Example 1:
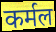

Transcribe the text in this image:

कर्मल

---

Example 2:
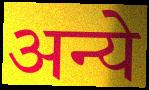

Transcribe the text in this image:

अन्ये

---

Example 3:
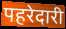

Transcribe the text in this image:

पहरेदारी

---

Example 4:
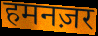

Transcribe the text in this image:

हमनज़र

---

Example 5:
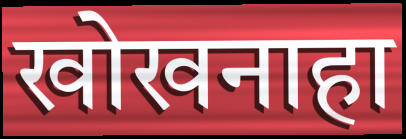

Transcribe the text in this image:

खोखनाहा